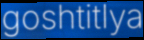
goshtitlya